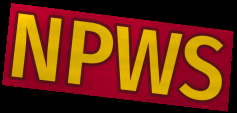
NPWS